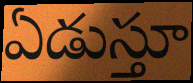
ఏడుస్తూ